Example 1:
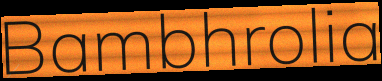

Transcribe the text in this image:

Bambhrolia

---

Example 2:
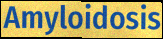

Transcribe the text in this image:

Amyloidosis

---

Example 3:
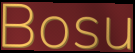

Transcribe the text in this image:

Bosu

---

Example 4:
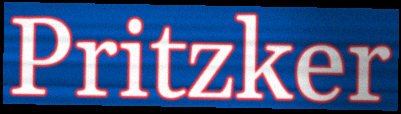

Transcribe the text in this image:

Pritzker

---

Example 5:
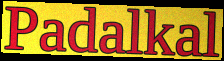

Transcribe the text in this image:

Padalkal